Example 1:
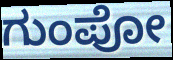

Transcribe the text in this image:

ಗುಂಪೋ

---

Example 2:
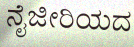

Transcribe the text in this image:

ನೈಜೀರಿಯದ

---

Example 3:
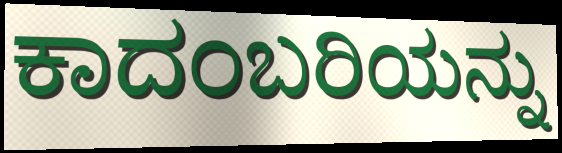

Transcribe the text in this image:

ಕಾದಂಬರಿಯನ್ನು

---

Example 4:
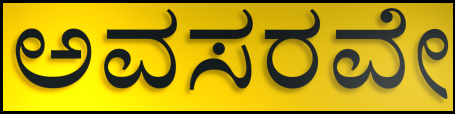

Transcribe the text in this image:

ಅವಸರವೇ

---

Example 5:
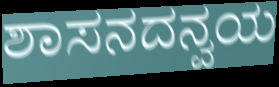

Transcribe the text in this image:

ಶಾಸನದನ್ವಯ